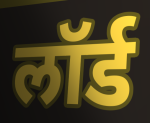
लॉर्ड